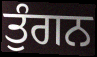
ਤੁੰਗਨ